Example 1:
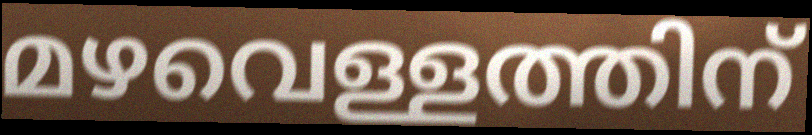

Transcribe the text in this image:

മഴവെള്ളത്തിന്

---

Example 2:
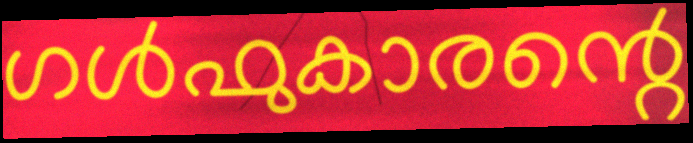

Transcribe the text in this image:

ഗൾഫുകാരന്റെ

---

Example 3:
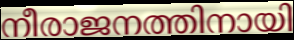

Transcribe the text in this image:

നീരാജനത്തിനായി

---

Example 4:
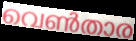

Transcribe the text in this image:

വെൺതാര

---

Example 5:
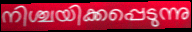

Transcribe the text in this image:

നിശ്ചയിക്കപ്പെടുന്നു